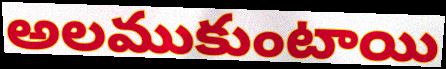
అలముకుంటాయి